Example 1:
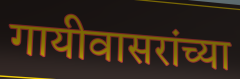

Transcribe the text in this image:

गायीवासरांच्या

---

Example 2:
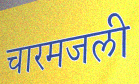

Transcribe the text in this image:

चारमजली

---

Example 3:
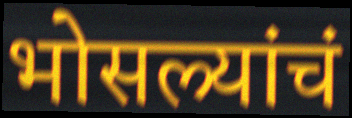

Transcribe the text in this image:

भोसल्यांचं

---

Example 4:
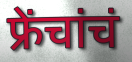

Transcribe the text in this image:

फ्रेंचांचं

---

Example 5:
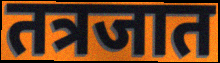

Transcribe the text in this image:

तत्रजात